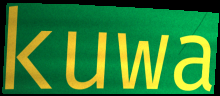
kuwa